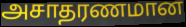
அசாதரணமான